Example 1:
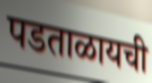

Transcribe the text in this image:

पडताळायची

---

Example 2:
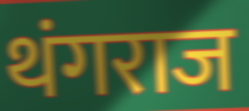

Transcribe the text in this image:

थंगराज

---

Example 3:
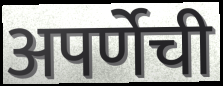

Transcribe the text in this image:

अपर्णेची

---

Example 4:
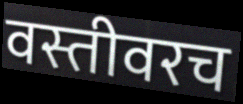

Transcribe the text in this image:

वस्तीवरच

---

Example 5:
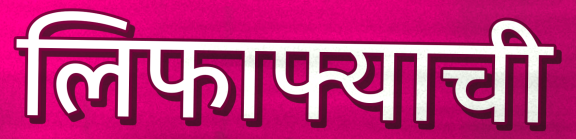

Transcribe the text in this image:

लिफाफ्याची